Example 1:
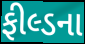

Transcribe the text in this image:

ફીલ્ડના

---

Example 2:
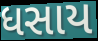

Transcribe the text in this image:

ધસાય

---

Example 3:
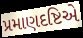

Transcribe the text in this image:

પ્રમાણદષ્ટિએ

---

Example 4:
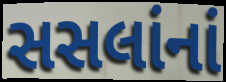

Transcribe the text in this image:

સસલાંનાં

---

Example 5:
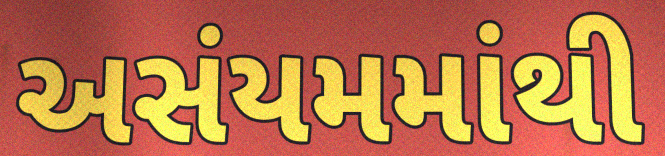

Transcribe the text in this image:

અસંયમમાંથી